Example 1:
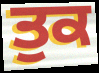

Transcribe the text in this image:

ਤੁਕ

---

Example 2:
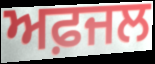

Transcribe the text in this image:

ਅਫ਼ਜਲ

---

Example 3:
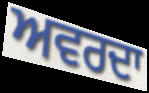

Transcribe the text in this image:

ਅਵਰਦਾ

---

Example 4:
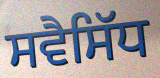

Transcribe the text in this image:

ਸਵੈਸਿੱਧ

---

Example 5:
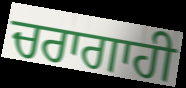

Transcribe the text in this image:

ਚਰਾਗਾਹੀ